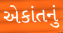
એકાંતનું